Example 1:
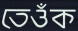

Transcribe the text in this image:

তেওঁক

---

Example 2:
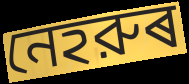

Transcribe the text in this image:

নেহৰুৰ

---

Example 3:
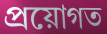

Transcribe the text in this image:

প্ৰয়োগত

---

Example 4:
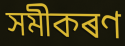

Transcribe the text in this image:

সমীকৰণ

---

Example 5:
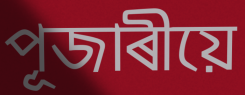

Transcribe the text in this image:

পূজাৰীয়ে